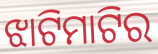
ଝାଟିମାଟିର